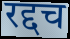
रद्दच